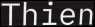
Thien